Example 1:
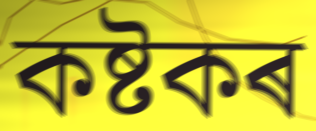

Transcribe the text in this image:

কষ্টকৰ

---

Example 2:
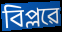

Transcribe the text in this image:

বিপ্লৱে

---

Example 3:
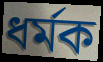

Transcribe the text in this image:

ধৰ্মক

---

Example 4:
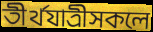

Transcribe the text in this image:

তীৰ্থযাত্ৰীসকলে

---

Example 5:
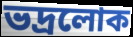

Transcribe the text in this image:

ভদ্ৰলোক